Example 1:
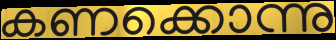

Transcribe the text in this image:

കണക്കൊന്നു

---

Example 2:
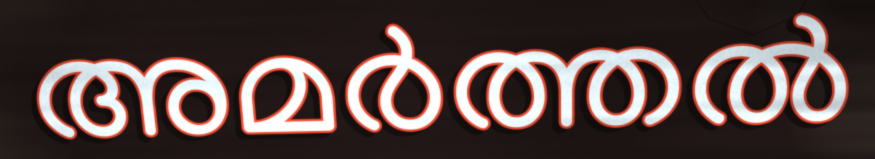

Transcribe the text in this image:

അമർത്തൽ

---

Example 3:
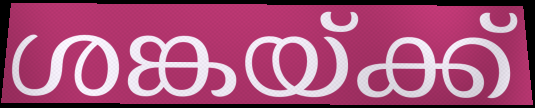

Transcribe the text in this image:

ശങ്കയ്ക്ക്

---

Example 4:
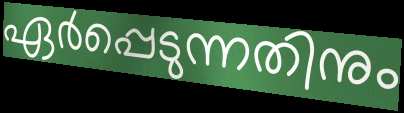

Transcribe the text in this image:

ഏർപ്പെടുന്നതിനും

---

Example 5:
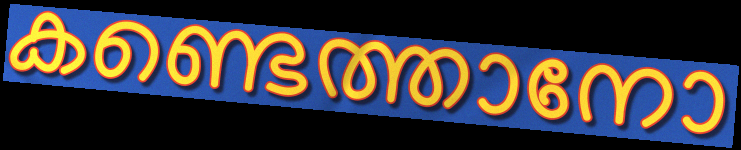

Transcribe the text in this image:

കണ്ടെത്താനോ